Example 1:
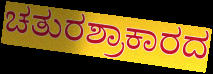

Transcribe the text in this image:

ಚತುರಶ್ರಾಕಾರದ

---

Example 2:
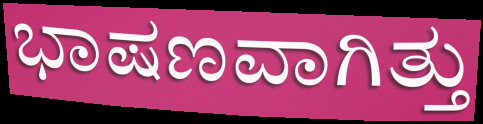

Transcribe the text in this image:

ಭಾಷಣವಾಗಿತ್ತು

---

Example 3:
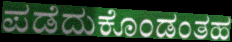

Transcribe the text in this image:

ಪಡೆದುಕೊಂಡಂತಹ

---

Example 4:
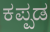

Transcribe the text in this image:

ಕಪ್ಪಡ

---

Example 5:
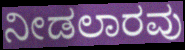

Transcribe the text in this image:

ನೀಡಲಾರವು